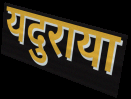
यदुराया